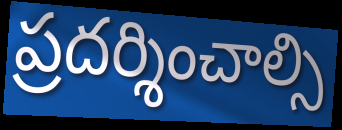
ప్రదర్శించాల్సి